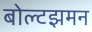
बोल्टझमन